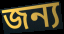
জন্য